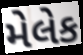
મેલેક